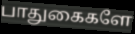
பாதுகைகளே